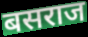
बसराज